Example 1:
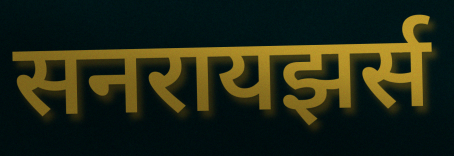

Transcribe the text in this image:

सनरायझर्स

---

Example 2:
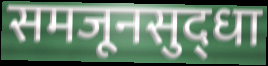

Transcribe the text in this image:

समजूनसुद्धा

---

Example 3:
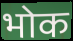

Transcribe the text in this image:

भोक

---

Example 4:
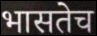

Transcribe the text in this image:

भासतेच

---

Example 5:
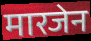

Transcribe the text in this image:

मारजेन